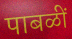
पाबळीं